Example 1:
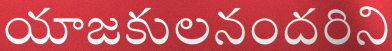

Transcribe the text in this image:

యాజకులనందరిని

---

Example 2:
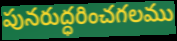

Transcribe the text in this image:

పునరుద్ధరించగలము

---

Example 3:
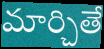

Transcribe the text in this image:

మార్చితే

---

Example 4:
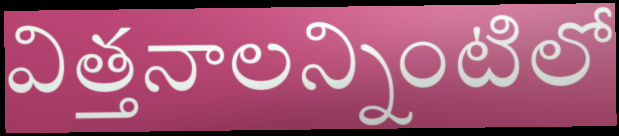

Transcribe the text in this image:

విత్తనాలన్నింటిలో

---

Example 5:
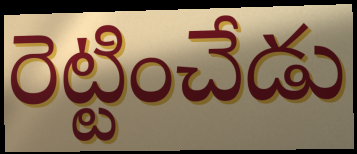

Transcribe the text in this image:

రెట్టించేడు